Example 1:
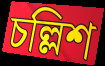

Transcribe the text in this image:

চল্লিশ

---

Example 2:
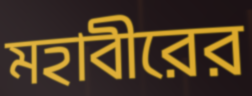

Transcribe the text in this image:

মহাবীরের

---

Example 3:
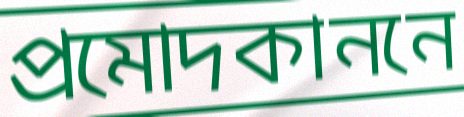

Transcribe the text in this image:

প্রমোদকাননে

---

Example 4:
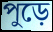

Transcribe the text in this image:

পুড়ে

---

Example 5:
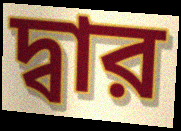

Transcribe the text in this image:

দ্বার